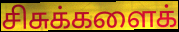
சிசுக்களைக்